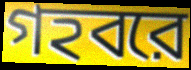
গহবরে